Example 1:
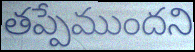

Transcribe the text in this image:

తప్పేముందని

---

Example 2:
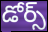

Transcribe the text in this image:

డోర్స్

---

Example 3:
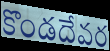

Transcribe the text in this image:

కొండదేవర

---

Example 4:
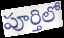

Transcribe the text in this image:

పూర్తిలో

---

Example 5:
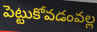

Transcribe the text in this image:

పెట్టుకోవడంవల్ల